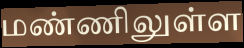
மண்ணிலுள்ள